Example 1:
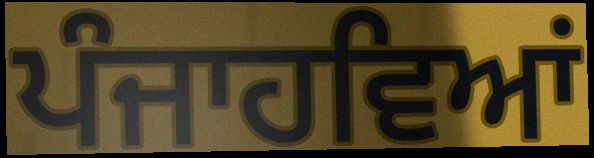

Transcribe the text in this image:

ਪੰਜਾਹਵਿਆਂ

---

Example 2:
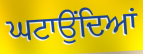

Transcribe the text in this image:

ਘਟਾਉਂਦਿਆਂ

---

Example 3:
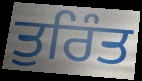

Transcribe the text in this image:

ਤੁਰਿੰਤ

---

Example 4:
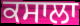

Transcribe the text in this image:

ਕਸਾਲਾ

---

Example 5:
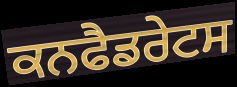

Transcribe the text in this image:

ਕਨਫੈਡਰੇਟਸ